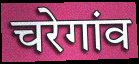
चरेगांव